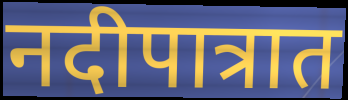
नदीपात्रात